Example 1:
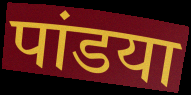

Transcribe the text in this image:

पांडया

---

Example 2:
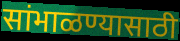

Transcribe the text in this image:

सांभाळण्यासाठी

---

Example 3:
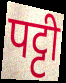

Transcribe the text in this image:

पट्टी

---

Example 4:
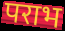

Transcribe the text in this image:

पराभ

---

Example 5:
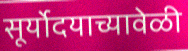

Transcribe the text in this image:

सूर्योदयाच्यावेळी